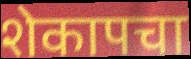
शेकापचा